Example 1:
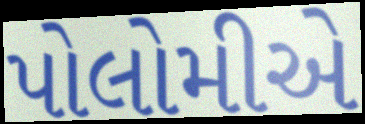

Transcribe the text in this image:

પોલોમીએ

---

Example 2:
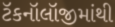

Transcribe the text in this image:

ટૅકનૉલૉજીમાંથી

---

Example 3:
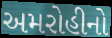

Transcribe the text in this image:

અમરોહીનો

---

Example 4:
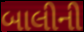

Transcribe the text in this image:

બાલીની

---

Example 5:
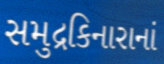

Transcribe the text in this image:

સમુદ્રકિનારાનાં